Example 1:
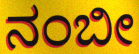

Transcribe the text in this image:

ನಂಬೀ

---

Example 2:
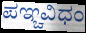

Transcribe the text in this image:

ಪಞ್ಚವಿಧಂ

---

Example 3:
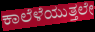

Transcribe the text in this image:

ಕಾಲೆಳೆಯುತ್ತಲೇ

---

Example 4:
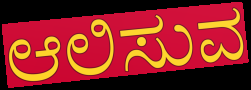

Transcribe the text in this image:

ಆಲಿಸುವ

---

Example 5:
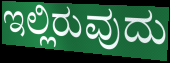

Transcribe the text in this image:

ಇಲ್ಲಿರುವುದು